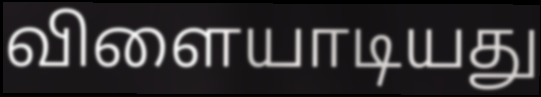
விளையாடியது